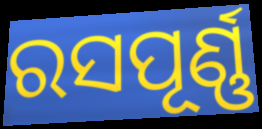
ରସପୂର୍ଣ୍ଣ